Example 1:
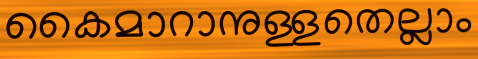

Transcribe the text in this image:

കൈമാറാനുള്ളതെല്ലാം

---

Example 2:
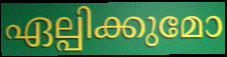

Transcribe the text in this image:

ഏല്പിക്കുമോ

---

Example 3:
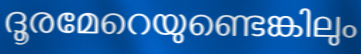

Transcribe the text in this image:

ദൂരമേറെയുണ്ടെങ്കിലും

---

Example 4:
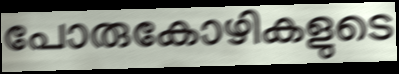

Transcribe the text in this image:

പോരുകോഴികളുടെ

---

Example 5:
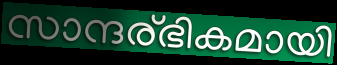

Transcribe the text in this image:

സാന്ദര്ഭികമായി